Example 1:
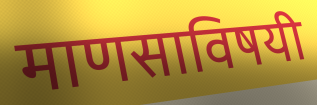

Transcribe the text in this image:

माणसाविषयी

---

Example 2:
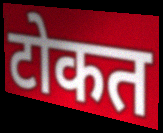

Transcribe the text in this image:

टोकत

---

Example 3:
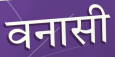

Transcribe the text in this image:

वनासी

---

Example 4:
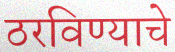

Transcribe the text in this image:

ठरविण्याचे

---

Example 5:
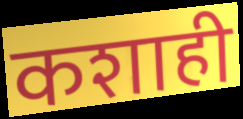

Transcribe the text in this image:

कशाही